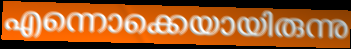
എന്നൊക്കെയായിരുന്നു